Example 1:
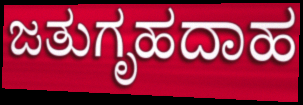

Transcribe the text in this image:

ಜತುಗೃಹದಾಹ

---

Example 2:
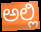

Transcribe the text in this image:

ಅಲ್ಲಿ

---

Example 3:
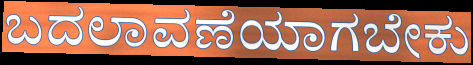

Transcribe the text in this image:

ಬದಲಾವಣೆಯಾಗಬೇಕು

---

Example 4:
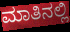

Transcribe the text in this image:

ಮಾತಿನಲ್ಲಿ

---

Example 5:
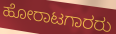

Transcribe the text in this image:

ಹೋರಾಟಗಾರರು